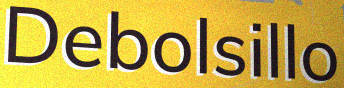
Debolsillo